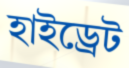
হাইড্রেট